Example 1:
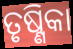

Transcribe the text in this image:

ତୃଷ୍ଣିକା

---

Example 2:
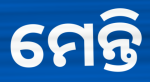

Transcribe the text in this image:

ମେନ୍ତି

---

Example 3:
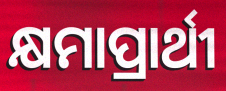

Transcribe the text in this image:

କ୍ଷମାପ୍ରାର୍ଥୀ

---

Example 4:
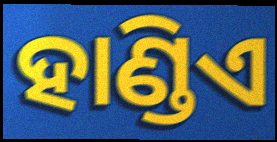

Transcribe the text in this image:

ହାଣ୍ଡିଏ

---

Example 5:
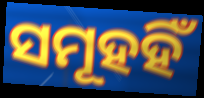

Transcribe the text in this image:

ସମୂହହିଁ